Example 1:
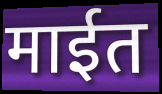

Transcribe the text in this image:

माईत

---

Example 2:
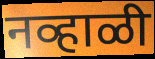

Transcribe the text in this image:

नव्हाळी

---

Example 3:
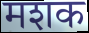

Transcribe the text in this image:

मशक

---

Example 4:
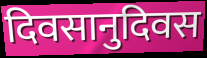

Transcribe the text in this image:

दिवसानुदिवस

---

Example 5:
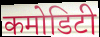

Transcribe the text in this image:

कमोडिटी